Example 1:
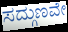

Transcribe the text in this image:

ಸದ್ಗುಣವೇ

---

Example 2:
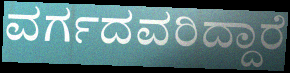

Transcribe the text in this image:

ವರ್ಗದವರಿದ್ದಾರೆ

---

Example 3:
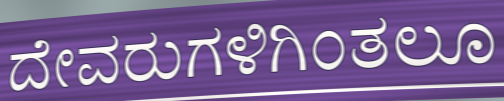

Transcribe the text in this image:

ದೇವರುಗಳಿಗಿಂತಲೂ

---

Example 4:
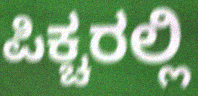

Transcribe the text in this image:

ಪಿಕ್ಚರಲ್ಲಿ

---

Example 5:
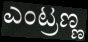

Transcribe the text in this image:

ಎಂಟ್ರಣ್ಣ